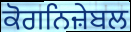
ਕੋਗਨਿਜ਼ੇਬਲ